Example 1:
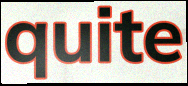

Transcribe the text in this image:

quite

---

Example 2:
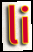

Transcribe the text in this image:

li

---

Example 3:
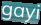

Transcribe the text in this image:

gayi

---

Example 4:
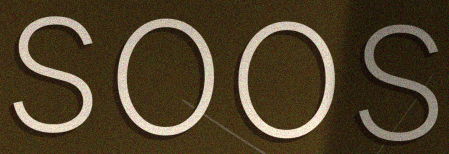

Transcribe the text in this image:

soos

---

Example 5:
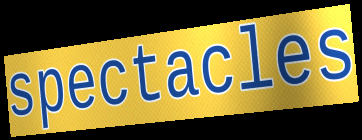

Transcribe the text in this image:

spectacles